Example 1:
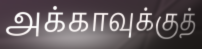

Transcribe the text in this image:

அக்காவுக்குத்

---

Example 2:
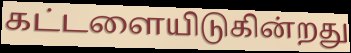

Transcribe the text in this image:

கட்டளையிடுகின்றது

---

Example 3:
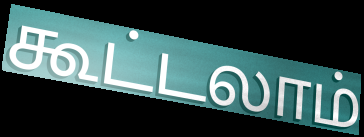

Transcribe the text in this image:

கூட்டலாம்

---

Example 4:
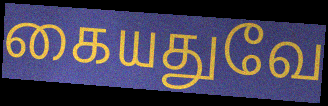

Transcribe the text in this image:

கையதுவே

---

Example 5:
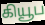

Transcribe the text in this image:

கியூப